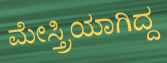
ಮೇಸ್ತ್ರಿಯಾಗಿದ್ದ